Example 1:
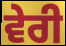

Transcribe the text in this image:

ਵੇਰੀ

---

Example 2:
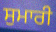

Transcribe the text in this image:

ਸੁਮਾਰੀ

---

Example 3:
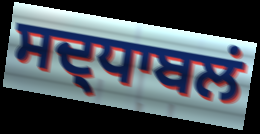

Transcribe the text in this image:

ਸਦ੍ਧਾਬਲਂ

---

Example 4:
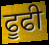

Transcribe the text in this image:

ਫੂਫੀ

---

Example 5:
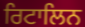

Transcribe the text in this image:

ਰਿਟਾਲਿਨ